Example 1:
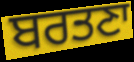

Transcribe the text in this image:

ਬਰਤਣਾ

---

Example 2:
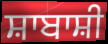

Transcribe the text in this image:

ਸ਼ਾਬਾਸ਼ੀ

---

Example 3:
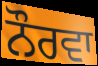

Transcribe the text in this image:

ਨੌਰਵਾ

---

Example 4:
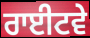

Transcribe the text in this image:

ਰਾਈਟਵੇ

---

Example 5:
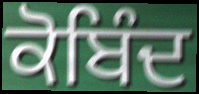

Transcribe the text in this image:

ਕੋਬਿੰਦ